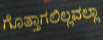
ಗೊತ್ತಾಗಲಿಲ್ಲವಲ್ಲಾ